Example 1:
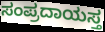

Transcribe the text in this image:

ಸಂಪ್ರದಾಯಸ್ತ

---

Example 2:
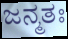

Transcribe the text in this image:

ಜನ್ಮತಃ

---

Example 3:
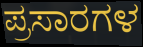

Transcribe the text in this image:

ಪ್ರಸಾರಗಳ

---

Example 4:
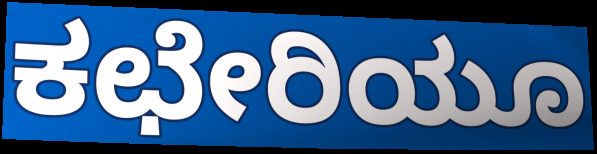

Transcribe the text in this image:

ಕಛೇರಿಯೂ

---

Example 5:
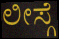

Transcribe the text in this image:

ಲೀಸ್ಗೆ